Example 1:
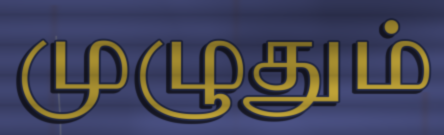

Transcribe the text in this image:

முழுதும்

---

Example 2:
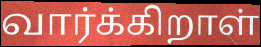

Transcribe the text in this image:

வார்க்கிறாள்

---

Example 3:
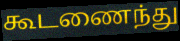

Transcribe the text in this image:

கூடணைந்து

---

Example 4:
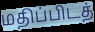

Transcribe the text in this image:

மதிப்பிடத்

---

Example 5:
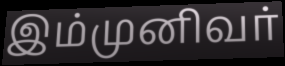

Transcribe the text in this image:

இம்முனிவர்